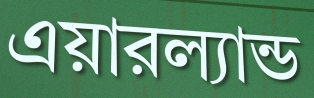
এয়ারল্যান্ড